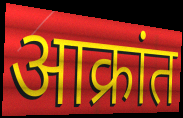
आक्रांत